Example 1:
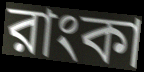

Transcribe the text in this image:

রাংকা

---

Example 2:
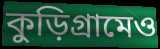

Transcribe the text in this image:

কুড়িগ্রামেও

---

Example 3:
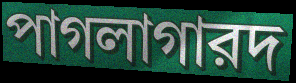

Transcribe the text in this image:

পাগলাগারদ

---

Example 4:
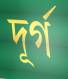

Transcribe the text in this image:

দূর্গ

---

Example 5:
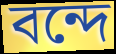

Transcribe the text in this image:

বন্দে